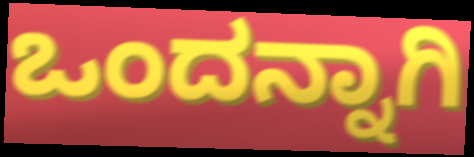
ಒಂದನ್ನಾಗಿ